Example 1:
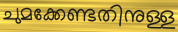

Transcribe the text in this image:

ചുമക്കേണ്ടതിനുള്ള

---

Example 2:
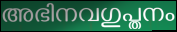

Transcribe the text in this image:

അഭിനവഗുപ്തനം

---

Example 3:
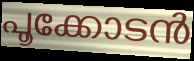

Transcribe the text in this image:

പൂക്കോടൻ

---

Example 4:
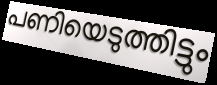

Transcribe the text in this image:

പണിയെടുത്തിട്ടും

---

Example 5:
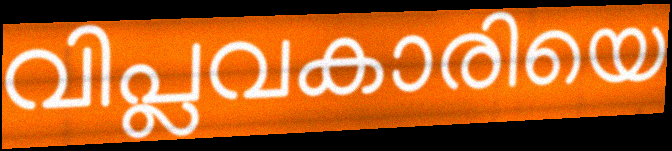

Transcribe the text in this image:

വിപ്ലവകാരിയെ